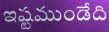
ఇష్టముండేది